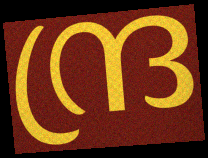
ന്ദ്ര